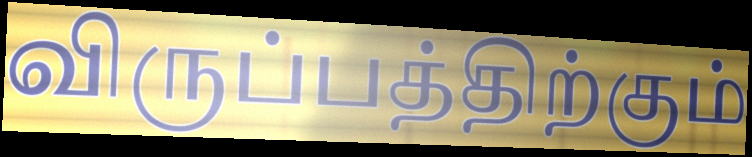
விருப்பத்திற்கும்